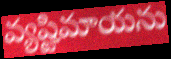
వ్యష్టిమాయను